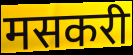
मसकरी